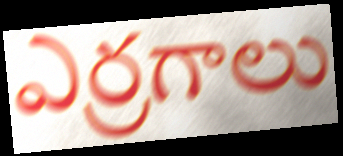
ఎర్రగాలు